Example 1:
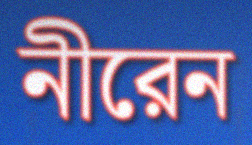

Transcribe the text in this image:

নীরেন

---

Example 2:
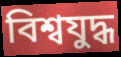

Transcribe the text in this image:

বিশ্বযুদ্ধ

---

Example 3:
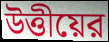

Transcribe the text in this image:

উত্তীয়ের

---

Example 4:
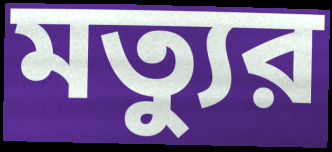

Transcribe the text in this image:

মত্যুর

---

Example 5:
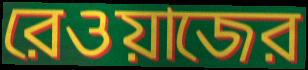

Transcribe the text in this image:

রেওয়াজের